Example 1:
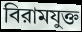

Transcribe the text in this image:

বিরামযুক্ত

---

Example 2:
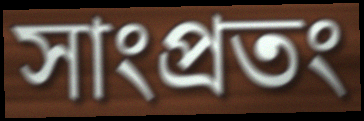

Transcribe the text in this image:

সাংপ্রতং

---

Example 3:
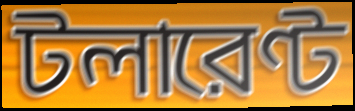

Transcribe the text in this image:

টলারেণ্ট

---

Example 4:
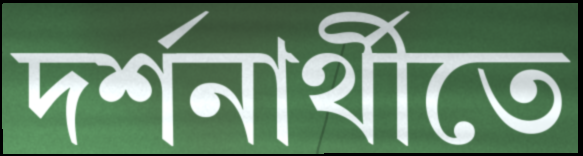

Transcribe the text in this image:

দর্শনার্থীতে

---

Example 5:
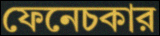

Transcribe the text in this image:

ফেনেচকার